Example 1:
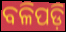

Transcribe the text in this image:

ବଳିପଡ଼ି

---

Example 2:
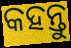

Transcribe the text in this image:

କହନ୍ତୁ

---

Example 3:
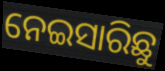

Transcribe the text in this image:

ନେଇସାରିଛୁ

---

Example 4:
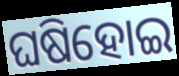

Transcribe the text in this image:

ଘଷିହୋଇ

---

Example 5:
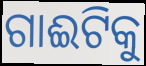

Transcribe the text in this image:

ଗାଈଟିକୁ